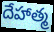
దేహాత్మ